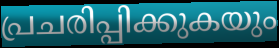
പ്രചരിപ്പിക്കുകയും